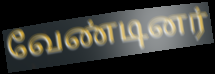
வேண்டினர்